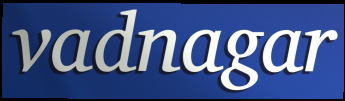
vadnagar